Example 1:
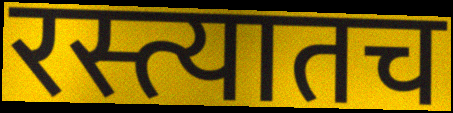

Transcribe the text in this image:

रस्त्यातच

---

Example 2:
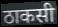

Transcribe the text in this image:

ठाकसी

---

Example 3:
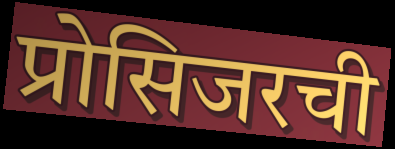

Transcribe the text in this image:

प्रोसिजरची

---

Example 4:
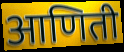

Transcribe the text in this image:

आणिती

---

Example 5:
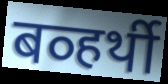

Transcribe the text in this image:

बव्हर्थी